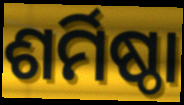
ଶର୍ମିଷ୍ଠା